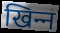
खिन्‍न